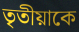
তৃতীয়াকে